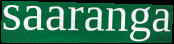
saaranga